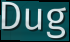
Dug